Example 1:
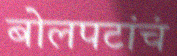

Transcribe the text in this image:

बोलपटांचं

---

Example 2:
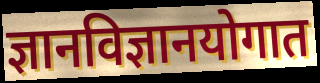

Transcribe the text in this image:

ज्ञानविज्ञानयोगात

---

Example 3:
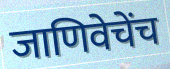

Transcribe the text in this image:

जाणिवेचेंच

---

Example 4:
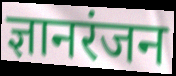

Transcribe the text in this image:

ज्ञानरंजन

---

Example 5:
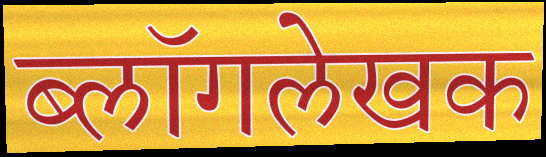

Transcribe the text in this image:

ब्लॉगलेखक